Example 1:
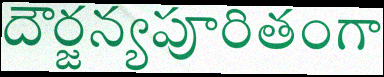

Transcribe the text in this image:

దౌర్జన్యపూరితంగా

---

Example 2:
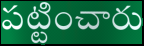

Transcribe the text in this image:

పట్టించారు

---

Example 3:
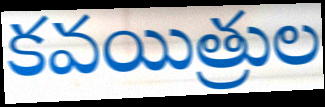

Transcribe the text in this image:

కవయిత్రుల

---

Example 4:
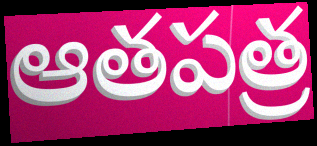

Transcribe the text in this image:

ఆతపత్ర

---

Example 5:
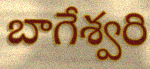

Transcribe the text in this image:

బాగేశ్వరి